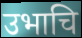
उभाचि